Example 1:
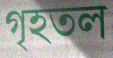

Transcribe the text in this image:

গৃহতল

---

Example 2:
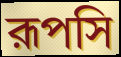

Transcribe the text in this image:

রূপসি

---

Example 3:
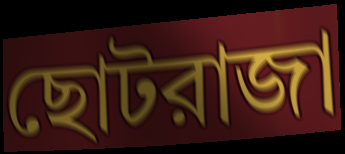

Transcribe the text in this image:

ছোটরাজা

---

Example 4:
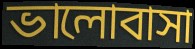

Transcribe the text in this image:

ভালোবাসা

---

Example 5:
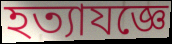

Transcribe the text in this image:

হত্যাযজ্ঞে